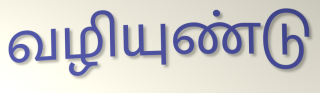
வழியுண்டு